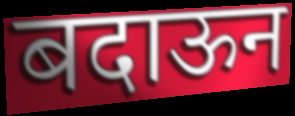
बदाऊन